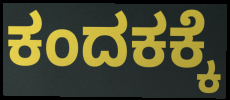
ಕಂದಕಕ್ಕೆ